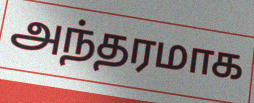
அந்தரமாக